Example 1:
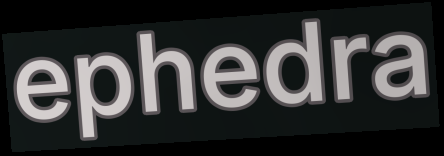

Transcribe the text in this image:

ephedra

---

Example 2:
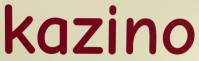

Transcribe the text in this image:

kazino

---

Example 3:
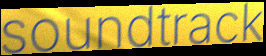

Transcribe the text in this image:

soundtrack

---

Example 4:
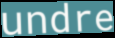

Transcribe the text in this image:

undre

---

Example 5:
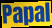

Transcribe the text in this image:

Papal